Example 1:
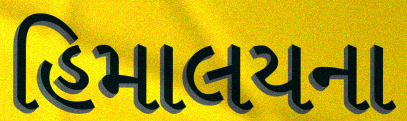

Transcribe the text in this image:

હિમાલયના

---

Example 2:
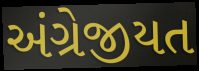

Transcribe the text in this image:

અંગ્રેજીયત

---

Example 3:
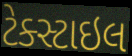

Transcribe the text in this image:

ટેક્સ્ટાઇલ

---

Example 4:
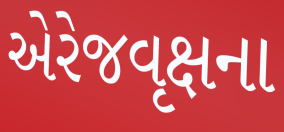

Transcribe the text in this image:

એરેજવૃક્ષના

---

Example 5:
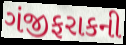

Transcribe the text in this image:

ગંજીફરાકની